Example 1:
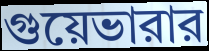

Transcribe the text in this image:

গুয়েভারার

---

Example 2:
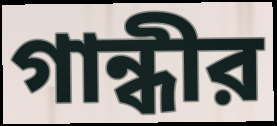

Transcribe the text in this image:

গান্ধীর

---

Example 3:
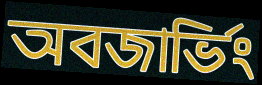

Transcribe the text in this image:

অবজার্ভিং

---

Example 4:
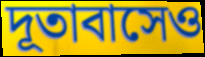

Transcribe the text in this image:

দূতাবাসেও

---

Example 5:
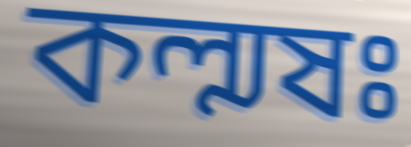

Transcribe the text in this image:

কল্মষঃ